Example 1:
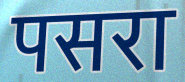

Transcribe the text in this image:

पसरा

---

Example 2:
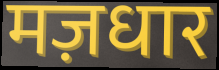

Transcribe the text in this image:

मज़धार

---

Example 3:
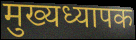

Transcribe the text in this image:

मुख्यध्यापक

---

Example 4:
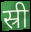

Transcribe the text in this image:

स्री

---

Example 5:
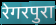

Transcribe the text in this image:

रेगरपुरा